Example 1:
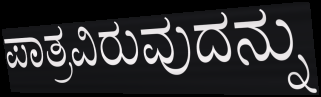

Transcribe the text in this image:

ಪಾತ್ರವಿರುವುದನ್ನು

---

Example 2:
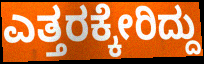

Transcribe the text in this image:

ಎತ್ತರಕ್ಕೇರಿದ್ದು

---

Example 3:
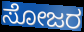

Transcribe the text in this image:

ಸೋಜರ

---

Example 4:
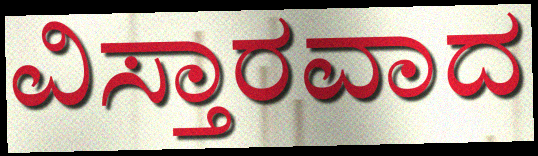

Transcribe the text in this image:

ವಿಸ್ತಾರವಾದ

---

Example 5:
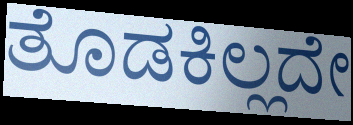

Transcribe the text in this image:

ತೊಡಕಿಲ್ಲದೇ